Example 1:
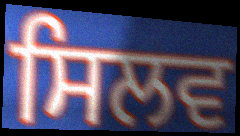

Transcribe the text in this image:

ਸਿਲਵ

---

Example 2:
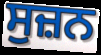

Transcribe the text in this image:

ਸੁਜ਼ਨ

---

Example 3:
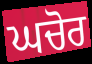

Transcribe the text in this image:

ਘਚੋਰ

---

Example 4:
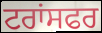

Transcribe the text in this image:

ਟਰਾਂਸਫਰ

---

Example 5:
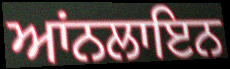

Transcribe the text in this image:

ਆਂਨਲਾਇਨ